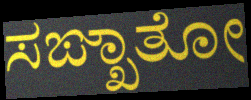
ಸಙ್ಖಾತೋ